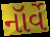
નૉર્વે